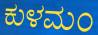
ಕುಳಮಂ